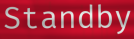
Standby